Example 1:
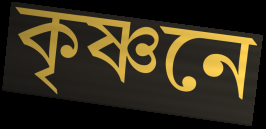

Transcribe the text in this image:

কৃষ্ণনে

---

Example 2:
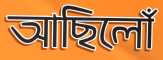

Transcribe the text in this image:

আছিলোঁ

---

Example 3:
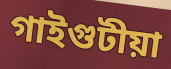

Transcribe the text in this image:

গাইগুটীয়া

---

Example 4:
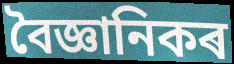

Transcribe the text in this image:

বৈজ্ঞানিকৰ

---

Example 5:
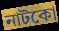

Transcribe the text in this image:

নাটকো